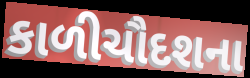
કાળીચૌદશના